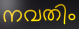
നവതിം